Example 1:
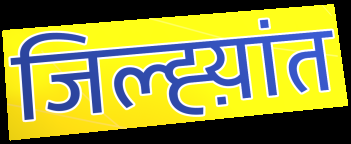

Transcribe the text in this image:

जिल्ह्य़ांत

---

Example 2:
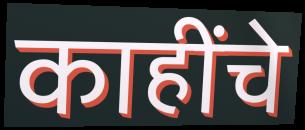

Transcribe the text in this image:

काहींचे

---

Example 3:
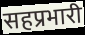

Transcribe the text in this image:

सहप्रभारी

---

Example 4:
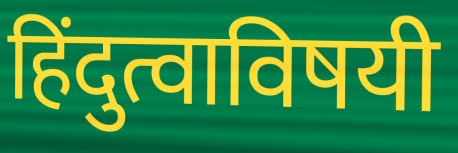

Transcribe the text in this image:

हिंदुत्वाविषयी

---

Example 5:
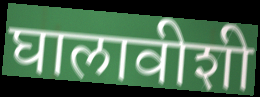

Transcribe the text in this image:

घालावीशी